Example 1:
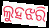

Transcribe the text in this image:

ଲୁହଝରି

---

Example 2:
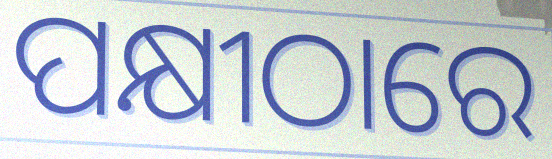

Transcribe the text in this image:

ପକ୍ଷୀଠାରେ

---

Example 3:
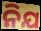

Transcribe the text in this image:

ନିଯ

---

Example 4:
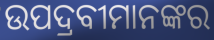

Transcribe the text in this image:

ଉପଦ୍ରବୀମାନଙ୍କର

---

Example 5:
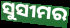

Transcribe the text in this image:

ସୁସୀମର